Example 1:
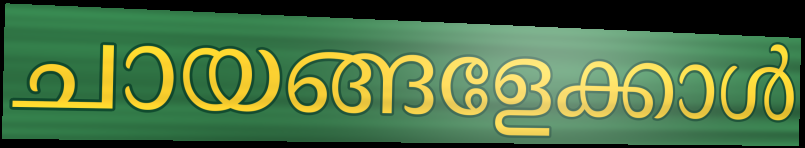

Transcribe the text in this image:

ചായങ്ങളേക്കാൾ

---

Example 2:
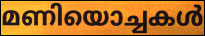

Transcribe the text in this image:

മണിയൊച്ചകൾ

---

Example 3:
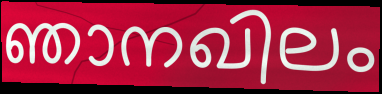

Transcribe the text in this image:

ഞാനഖിലം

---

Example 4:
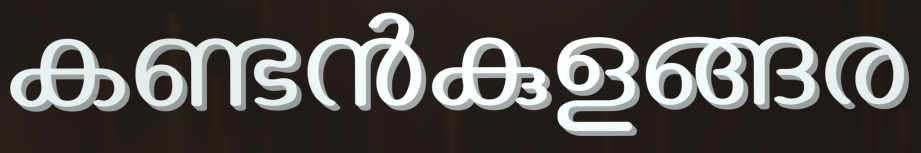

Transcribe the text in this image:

കണ്ടൻകുളങ്ങര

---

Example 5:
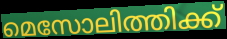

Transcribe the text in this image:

മെസോലിത്തിക്ക്